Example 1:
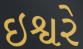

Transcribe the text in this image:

ઇશ્વરે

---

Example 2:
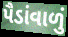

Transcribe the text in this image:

પૈડાંવાળું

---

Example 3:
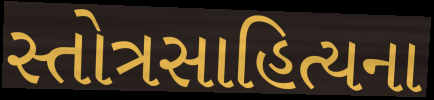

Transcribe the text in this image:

સ્તોત્રસાહિત્યના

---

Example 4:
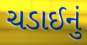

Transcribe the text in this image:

ચડાઈનું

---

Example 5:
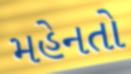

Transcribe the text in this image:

મહેનતો